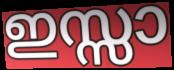
ഇസ്സാ